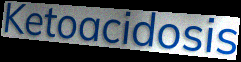
Ketoacidosis